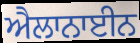
ਐਲਾਨਾਈਨ